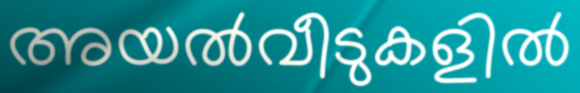
അയൽവീടുകളിൽ